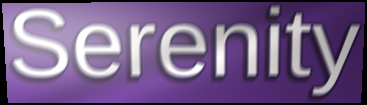
Serenity